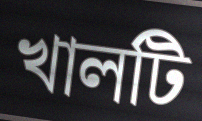
খালটি